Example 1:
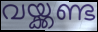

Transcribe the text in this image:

വയ്ക്കണ്ട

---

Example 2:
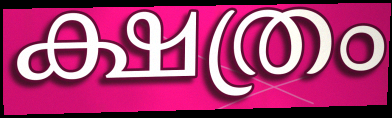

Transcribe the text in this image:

ക്ഷത്രം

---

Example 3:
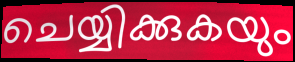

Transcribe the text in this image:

ചെയ്യിക്കുകയും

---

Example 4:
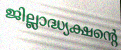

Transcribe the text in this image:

ജില്ലാദ്ധ്യക്ഷന്റെ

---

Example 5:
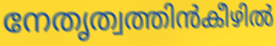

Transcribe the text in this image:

നേതൃത്വത്തിൻകീഴിൽ